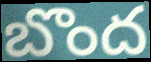
బొంద